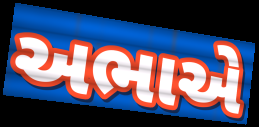
અભાએ